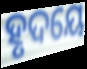
ହୃଦୟେ